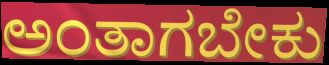
ಅಂತಾಗಬೇಕು